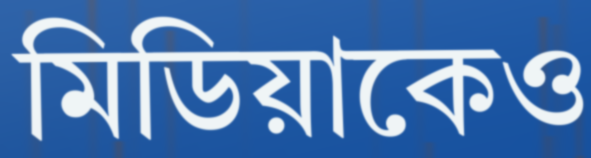
মিডিয়াকেও